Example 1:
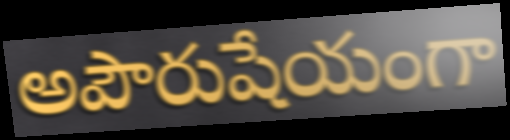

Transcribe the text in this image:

అపౌరుషేయంగా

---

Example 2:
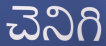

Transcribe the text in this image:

చెనిగి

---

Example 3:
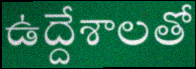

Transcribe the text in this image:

ఉద్దేశాలతో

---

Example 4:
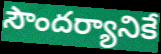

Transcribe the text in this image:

సౌందర్యానికే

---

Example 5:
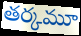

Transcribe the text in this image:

తర్కమూ